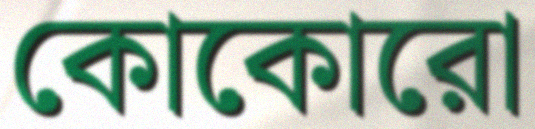
কোকোরো